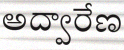
అద్వారేణ